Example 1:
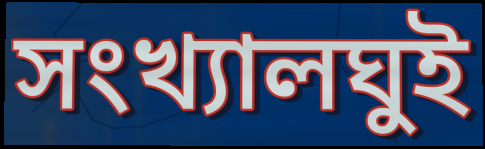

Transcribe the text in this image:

সংখ্যালঘুই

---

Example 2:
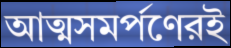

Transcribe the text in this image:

আত্মসমর্পণেরই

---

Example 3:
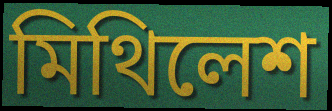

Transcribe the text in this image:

মিথিলেশ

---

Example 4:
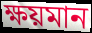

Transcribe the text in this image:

ক্ষয়মান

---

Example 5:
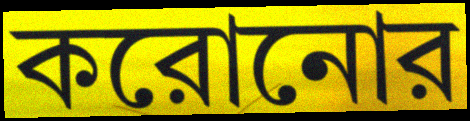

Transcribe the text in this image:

করোনোর